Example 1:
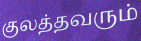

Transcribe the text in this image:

குலத்தவரும்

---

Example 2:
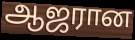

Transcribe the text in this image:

ஆஜரான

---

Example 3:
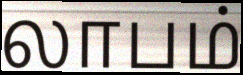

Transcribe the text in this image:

லாபம்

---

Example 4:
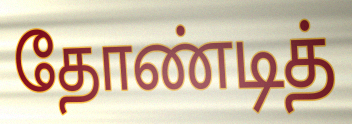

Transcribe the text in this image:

தோண்டித்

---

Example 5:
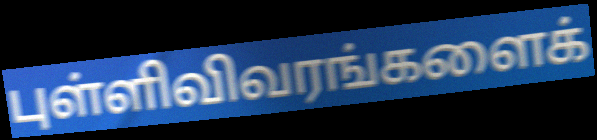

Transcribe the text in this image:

புள்ளிவிவரங்களைக்